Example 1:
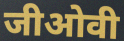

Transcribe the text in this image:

जीओवी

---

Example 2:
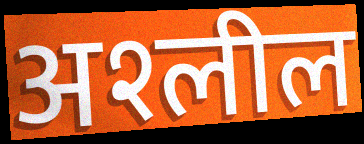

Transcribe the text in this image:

अश्लील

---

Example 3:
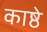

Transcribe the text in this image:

काष्ठे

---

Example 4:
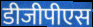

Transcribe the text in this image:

डीजीपीएस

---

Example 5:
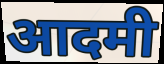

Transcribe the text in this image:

आदमी